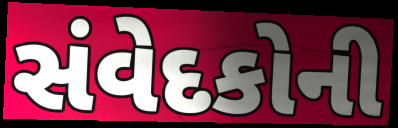
સંવેદકોની